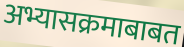
अभ्यासक्रमाबाबत